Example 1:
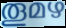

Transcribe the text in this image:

തൂമഴ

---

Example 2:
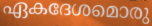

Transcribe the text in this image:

ഏകദേശമൊരു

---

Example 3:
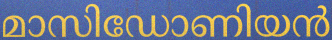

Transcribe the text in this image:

മാസിഡോണിയൻ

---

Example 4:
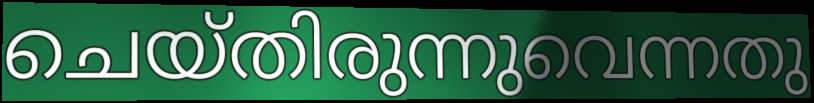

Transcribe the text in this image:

ചെയ്തിരുന്നുവെന്നതു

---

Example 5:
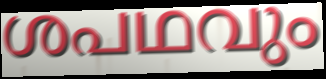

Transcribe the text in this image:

ശപഥവും